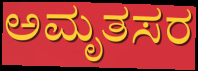
ಅಮೃತಸರ